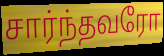
சார்ந்தவரோ